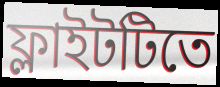
ফ্লাইটটিতে